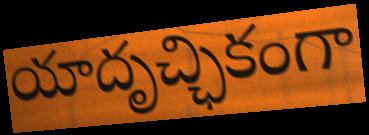
యాదృచ్ఛికంగా